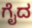
ಗೈದ